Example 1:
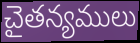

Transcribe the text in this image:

చైతన్యములు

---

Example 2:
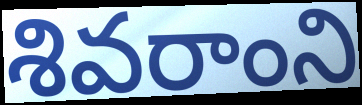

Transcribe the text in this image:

శివరాంని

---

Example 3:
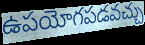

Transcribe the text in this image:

ఉపయోగపడవచ్చు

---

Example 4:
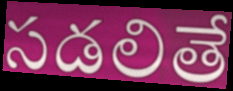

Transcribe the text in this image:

సడలితే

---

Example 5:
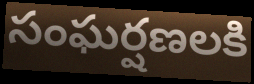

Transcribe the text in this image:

సంఘర్షణలకి